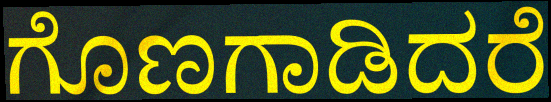
ಗೊಣಗಾಡಿದರೆ